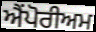
ਐਂਪੋਰੀਅਮ